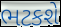
ભટકશે